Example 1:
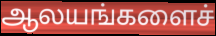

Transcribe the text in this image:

ஆலயங்களைச்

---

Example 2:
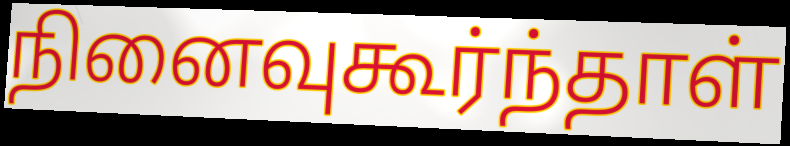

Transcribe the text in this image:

நினைவுகூர்ந்தாள்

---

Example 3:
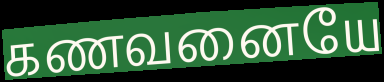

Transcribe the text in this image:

கணவனையே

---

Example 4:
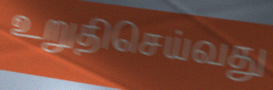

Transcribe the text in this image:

உறுதிசெய்வது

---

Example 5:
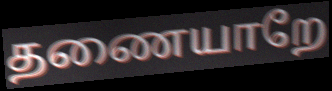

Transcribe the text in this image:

தணையாறே